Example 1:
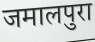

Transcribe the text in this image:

जमालपुरा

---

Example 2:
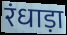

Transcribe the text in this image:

रंधाड़ा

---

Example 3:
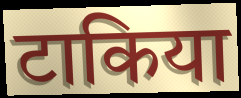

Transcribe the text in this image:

टाकिया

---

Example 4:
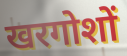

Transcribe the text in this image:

खरगोशों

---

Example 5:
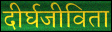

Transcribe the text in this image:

दीर्घजीविता